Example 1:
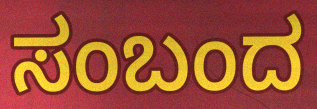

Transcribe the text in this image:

ಸಂಬಂದ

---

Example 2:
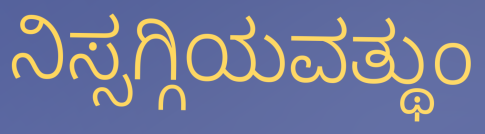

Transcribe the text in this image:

ನಿಸ್ಸಗ್ಗಿಯವತ್ಥುಂ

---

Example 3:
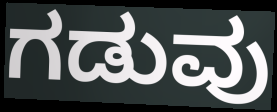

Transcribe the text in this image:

ಗಡುವು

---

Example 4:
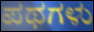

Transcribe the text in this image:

ಪಥಗಳು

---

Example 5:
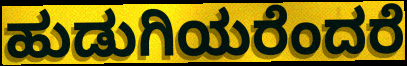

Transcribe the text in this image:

ಹುಡುಗಿಯರೆಂದರೆ